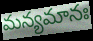
మన్యమానః